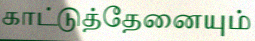
காட்டுத்தேனையும்